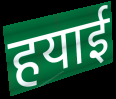
हयाई